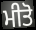
ਮੀਤੋ